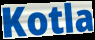
Kotla